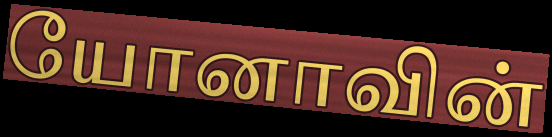
யோனாவின்